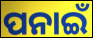
ପନାଇଁ